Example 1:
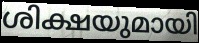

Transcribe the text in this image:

ശിക്ഷയുമായി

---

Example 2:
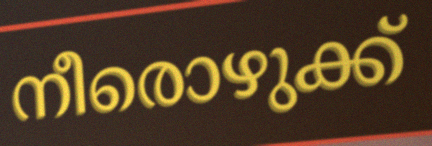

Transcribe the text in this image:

നീരൊഴുക്ക്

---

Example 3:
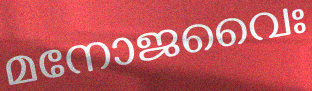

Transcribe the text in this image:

മനോജവൈഃ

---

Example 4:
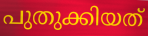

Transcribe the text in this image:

പുതുക്കിയത്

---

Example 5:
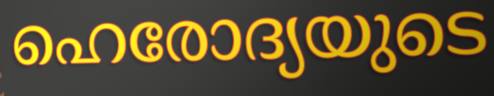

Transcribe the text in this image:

ഹെരോദ്യയുടെ